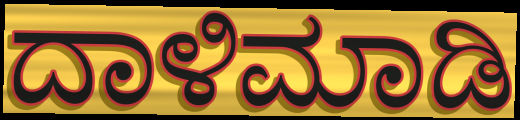
ದಾಳಿಮಾಡಿ